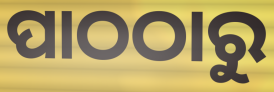
ପାଠଠାରୁ